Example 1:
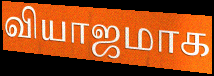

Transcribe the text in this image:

வியாஜமாக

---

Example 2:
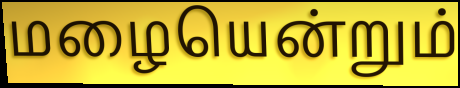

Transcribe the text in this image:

மழையென்றும்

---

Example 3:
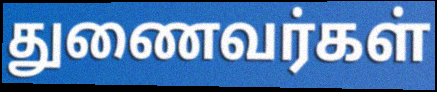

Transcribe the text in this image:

துணைவர்கள்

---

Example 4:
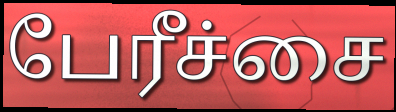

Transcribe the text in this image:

பேரீச்சை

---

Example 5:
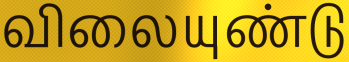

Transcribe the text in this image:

விலையுண்டு